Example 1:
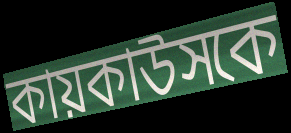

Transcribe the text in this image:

কায়কাউসকে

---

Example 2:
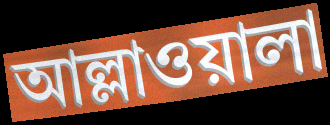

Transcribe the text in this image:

আল্লাওয়ালা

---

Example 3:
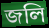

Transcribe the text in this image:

জলি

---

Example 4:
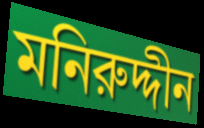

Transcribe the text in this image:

মনিরুদ্দীন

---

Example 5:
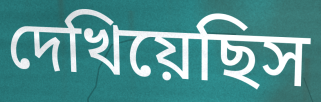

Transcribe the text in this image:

দেখিয়েছিস